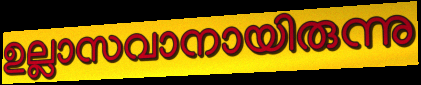
ഉല്ലാസവാനായിരുന്നു